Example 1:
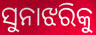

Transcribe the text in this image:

ସୁନାଝରିକୁ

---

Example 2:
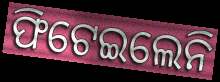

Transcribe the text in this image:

ଫିଟେଇଲେନି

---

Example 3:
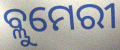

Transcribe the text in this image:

ବ୍ଲୁମେରୀ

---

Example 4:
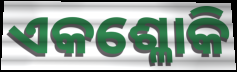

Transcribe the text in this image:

ଏକଶ୍ଳୋକି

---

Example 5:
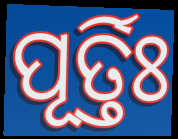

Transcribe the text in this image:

ପୂର୍ତ୍ତିଃ